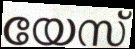
യേസ്